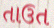
તાઉત